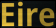
Eire